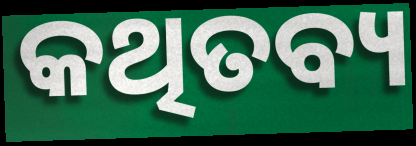
କଥିତବ୍ୟ